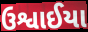
ઉશ્વાઈયા